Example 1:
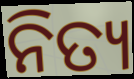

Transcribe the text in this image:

ନିତ୍ୟ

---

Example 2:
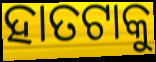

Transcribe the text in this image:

ହାତଟାକୁ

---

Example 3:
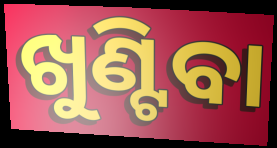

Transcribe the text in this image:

ଖୁଣ୍ଟିବା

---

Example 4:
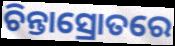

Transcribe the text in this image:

ଚିନ୍ତାସ୍ରୋତରେ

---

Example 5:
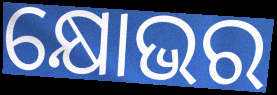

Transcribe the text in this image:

କ୍ଷୋଭର